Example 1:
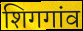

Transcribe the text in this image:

शिगगांव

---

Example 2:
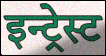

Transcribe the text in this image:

इन्ट्रेस्ट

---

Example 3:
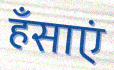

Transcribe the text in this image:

हँसाएं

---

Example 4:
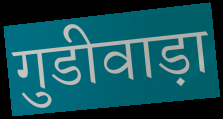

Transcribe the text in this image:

गुडीवाड़ा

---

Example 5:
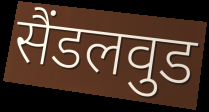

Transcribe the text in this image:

सैंडलवुड